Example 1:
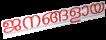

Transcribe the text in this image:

ജനങ്ങളായ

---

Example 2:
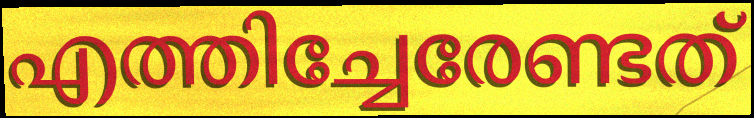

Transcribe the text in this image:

എത്തിച്ചേരേണ്ടത്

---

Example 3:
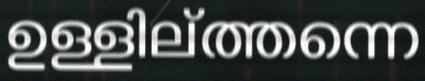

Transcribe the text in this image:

ഉള്ളില്ത്തന്നെ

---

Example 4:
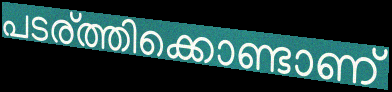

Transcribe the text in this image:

പടര്ത്തിക്കൊണ്ടാണ്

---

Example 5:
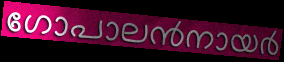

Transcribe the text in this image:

ഗോപാലൻനായർ